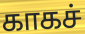
காகச்